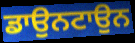
ਡਾਉਨਟਾਉਨ